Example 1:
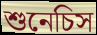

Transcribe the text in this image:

শুনেচিস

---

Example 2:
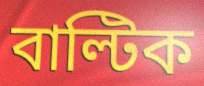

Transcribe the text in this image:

বাল্টিক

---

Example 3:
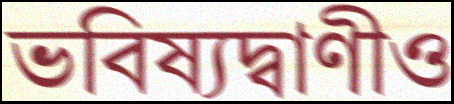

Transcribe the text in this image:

ভবিষ্যদ্বাণীও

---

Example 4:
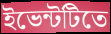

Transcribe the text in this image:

ইভেন্টটিতে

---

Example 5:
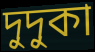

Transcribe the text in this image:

দুদুকা